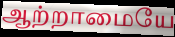
ஆற்றாமையே